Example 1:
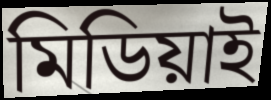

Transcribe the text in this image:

মিডিয়াই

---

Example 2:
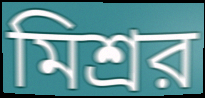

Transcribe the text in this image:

মিশ্রর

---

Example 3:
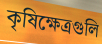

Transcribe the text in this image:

কৃষিক্ষেত্রগুলি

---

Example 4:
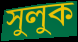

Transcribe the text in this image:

সুলুক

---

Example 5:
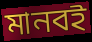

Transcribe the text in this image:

মানবই